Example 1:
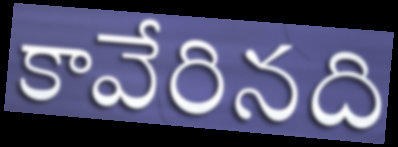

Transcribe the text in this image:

కావేరినది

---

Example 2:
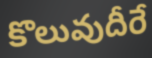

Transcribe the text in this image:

కొలువుదీరే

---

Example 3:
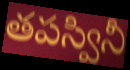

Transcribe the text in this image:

తపస్వినీ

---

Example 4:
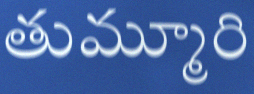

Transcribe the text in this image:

తుమ్మూరి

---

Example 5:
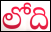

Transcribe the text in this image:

లోది